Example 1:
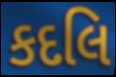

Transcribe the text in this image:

કદલિ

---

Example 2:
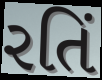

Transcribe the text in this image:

રતિં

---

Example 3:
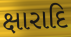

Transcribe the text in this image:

ક્ષારાદિ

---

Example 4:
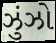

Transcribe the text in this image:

ઝુંઝો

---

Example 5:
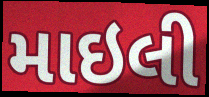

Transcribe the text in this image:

માઇલી